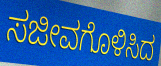
ಸಜೀವಗೊಳಿಸಿದ